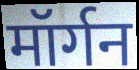
मॉर्गन